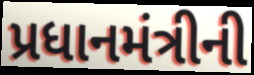
પ્રધાનમંત્રીની